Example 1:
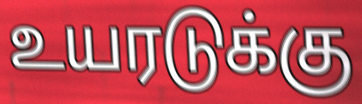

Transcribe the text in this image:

உயரடுக்கு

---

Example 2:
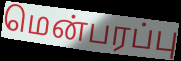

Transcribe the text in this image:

மென்பரப்பு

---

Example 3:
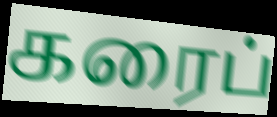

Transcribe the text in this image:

கரைப்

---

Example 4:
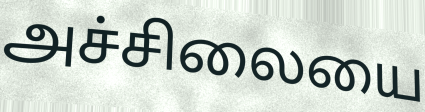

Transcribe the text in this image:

அச்சிலையை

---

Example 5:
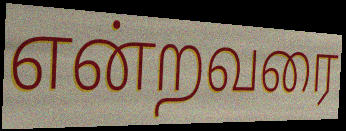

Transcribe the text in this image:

என்றவரை